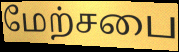
மேற்சபை